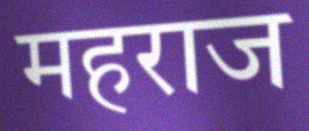
महराज